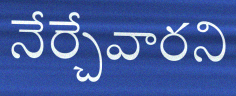
నేర్చేవారని